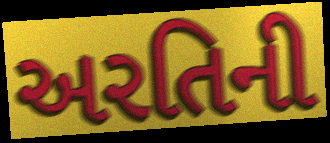
અરતિની